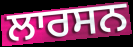
ਲਾਰਸਨ